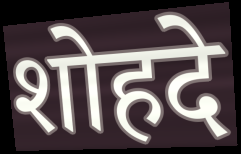
शोहदे